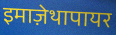
इमाज़ेथापायर